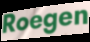
Roegen